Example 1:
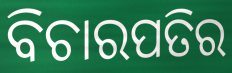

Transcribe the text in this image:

ବିଚାରପତିର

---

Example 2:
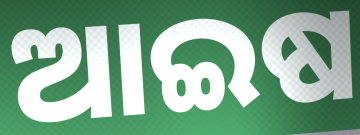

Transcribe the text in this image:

ଆଇଷ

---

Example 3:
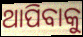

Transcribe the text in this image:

ଥାପିବାକୁ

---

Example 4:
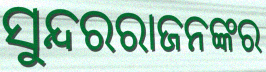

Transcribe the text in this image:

ସୁନ୍ଦରରାଜନଙ୍କର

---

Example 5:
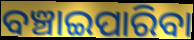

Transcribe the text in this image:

ବଞ୍ଚାଇପାରିବା